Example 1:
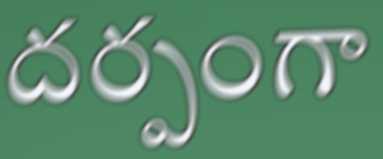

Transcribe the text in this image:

దర్పంగా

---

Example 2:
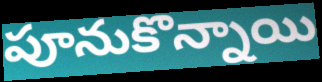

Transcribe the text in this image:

పూనుకొన్నాయి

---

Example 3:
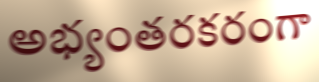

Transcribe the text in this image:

అభ్యంతరకరంగా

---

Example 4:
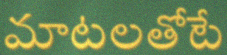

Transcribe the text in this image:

మాటలతోటే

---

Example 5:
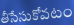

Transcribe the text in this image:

తీసేసుకోవటం